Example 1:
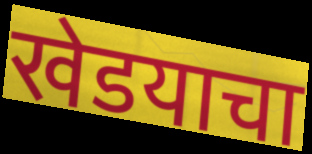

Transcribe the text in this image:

खेडयाचा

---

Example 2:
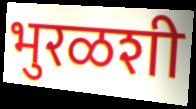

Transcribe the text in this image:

भुरळशी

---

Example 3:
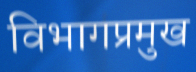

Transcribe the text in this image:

विभागप्रमुख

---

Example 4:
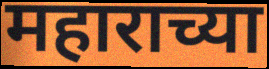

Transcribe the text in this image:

महाराच्या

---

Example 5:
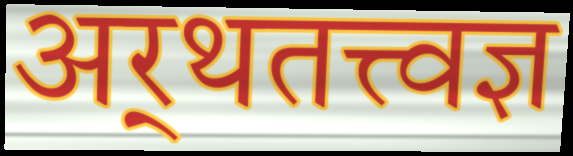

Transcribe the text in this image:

अर्थतत्त्वज्ञ